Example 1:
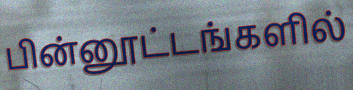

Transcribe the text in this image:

பின்னூட்டங்களில்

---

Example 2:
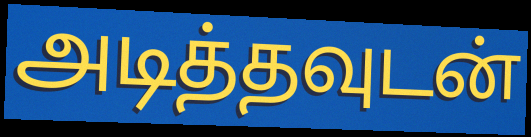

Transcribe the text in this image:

அடித்தவுடன்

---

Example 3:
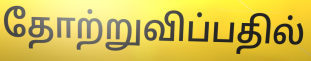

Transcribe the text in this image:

தோற்றுவிப்பதில்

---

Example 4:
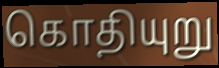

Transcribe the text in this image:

கொதியுறு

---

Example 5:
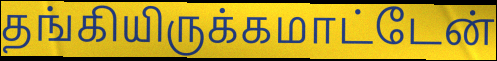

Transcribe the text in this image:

தங்கியிருக்கமாட்டேன்